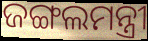
ଜଙ୍ଗଲମନ୍ତ୍ରୀ